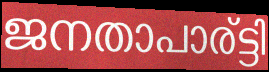
ജനതാപാര്ട്ടി